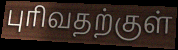
புரிவதற்குள்